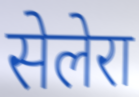
सेलेरा